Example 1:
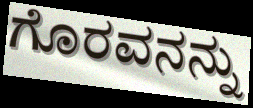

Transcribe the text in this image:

ಗೊರವನನ್ನು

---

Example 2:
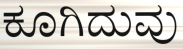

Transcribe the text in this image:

ಕೂಗಿದುವು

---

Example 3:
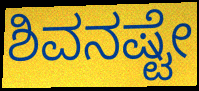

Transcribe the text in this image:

ಶಿವನಷ್ಟೇ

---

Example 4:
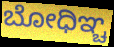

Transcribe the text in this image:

ಬೋಧಿಞ್ಚ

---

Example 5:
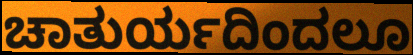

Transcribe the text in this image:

ಚಾತುರ್ಯದಿಂದಲೂ